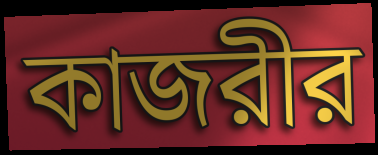
কাজরীর